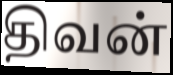
திவன்